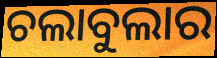
ଚଲାବୁଲାର